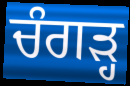
ਚੰਗੜ੍ਹ